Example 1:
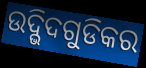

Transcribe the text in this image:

ଉଦ୍ଭିଦଗୁଡିକର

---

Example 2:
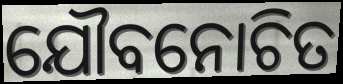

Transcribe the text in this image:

ଯୌବନୋଚିତ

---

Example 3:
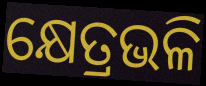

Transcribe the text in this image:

କ୍ଷେତ୍ରଭଳି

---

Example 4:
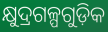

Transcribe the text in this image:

କ୍ଷୁଦ୍ରଗଳ୍ପଗୁଡ଼ିକ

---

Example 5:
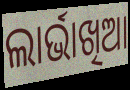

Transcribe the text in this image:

ଲାର୍ଭାଖିଆ